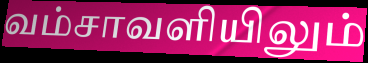
வம்சாவளியிலும்